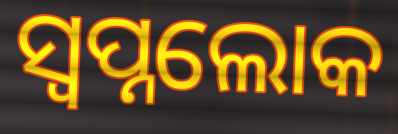
ସ୍ଵପ୍ନଲୋକ